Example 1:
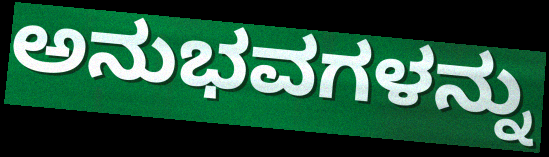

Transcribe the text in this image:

ಅನುಭವಗಳನ್ನು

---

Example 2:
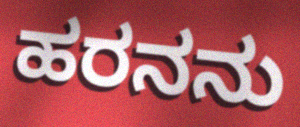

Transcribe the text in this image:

ಹರನನು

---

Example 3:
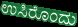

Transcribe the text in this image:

ಉಸಿರೊಂದು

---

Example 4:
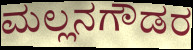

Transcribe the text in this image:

ಮಲ್ಲನಗೌಡರ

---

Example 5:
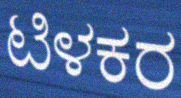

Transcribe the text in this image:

ಟಿಳಕರ